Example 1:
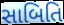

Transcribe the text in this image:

સાબિતિ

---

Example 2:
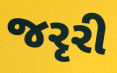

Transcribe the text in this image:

જરૃરી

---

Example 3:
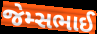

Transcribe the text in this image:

જેમ્સભાઈ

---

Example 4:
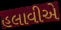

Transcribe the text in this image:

હલાવીએ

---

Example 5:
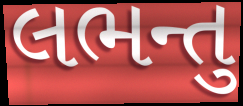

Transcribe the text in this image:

લભન્તુ